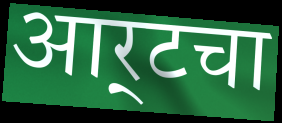
आर्टचा